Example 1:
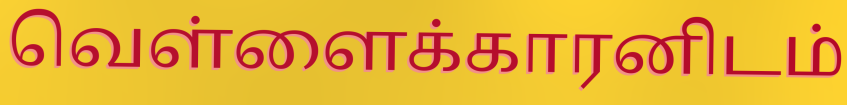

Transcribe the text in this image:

வெள்ளைக்காரனிடம்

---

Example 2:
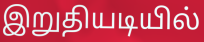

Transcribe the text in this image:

இறுதியடியில்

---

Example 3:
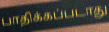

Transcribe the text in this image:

பாதிக்கப்படாது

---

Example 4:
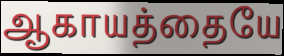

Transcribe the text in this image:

ஆகாயத்தையே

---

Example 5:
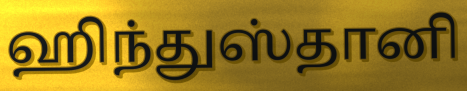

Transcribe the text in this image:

ஹிந்துஸ்தானி